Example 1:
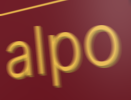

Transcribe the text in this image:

alpo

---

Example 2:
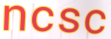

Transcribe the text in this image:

ncsc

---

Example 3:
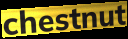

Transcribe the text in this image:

chestnut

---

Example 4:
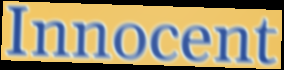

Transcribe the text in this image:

Innocent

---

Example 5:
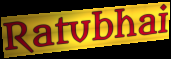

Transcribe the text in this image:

Ratubhai